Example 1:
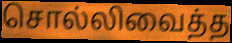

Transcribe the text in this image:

சொல்லிவைத்த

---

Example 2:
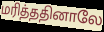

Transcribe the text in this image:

மரித்ததினாலே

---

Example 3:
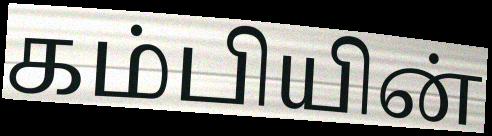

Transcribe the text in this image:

கம்பியின்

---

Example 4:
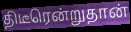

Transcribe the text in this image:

திடீரென்றுதான்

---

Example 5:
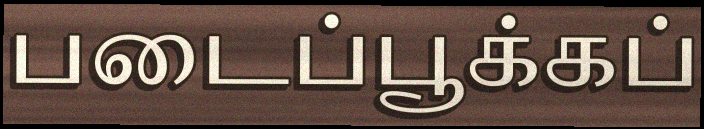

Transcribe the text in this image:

படைப்பூக்கப்